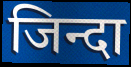
जिन्दा